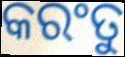
କରଂତୁ